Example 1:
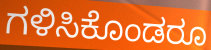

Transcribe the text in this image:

ಗಳಿಸಿಕೊಂಡರೂ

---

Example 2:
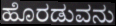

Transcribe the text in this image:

ಹೊರಡುವನು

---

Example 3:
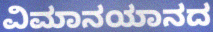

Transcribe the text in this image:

ವಿಮಾನಯಾನದ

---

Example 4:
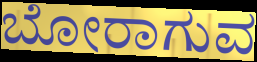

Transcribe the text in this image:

ಬೋರಾಗುವ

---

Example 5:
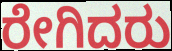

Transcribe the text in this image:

ರೇಗಿದರು